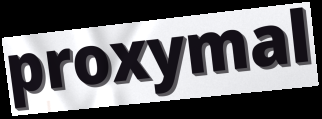
proxymal